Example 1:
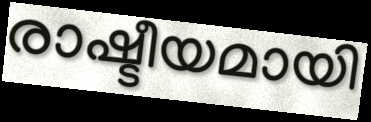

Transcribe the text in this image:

രാഷ്ടീയമായി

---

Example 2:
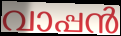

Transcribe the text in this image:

വാപ്പൻ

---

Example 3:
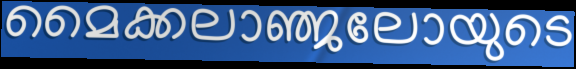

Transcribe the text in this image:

മൈക്കലാഞ്ജലോയുടെ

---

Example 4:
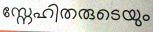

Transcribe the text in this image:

സ്നേഹിതരുടെയും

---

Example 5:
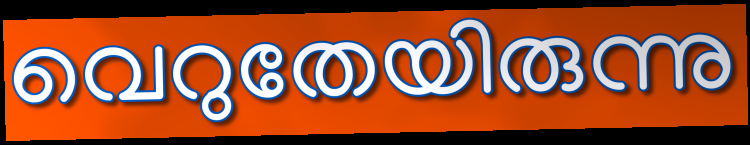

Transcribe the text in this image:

വെറുതേയിരുന്നു